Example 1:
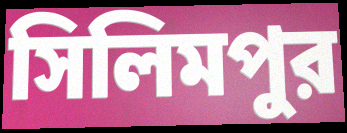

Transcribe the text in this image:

সিলিমপুর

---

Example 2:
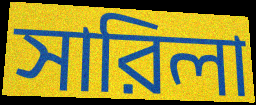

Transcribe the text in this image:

সারিলা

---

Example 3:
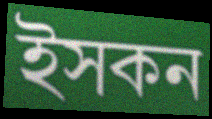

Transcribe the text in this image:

ইসকন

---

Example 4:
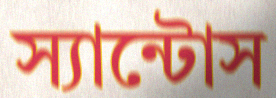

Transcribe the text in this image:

স্যান্টোস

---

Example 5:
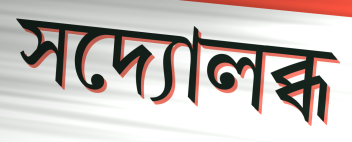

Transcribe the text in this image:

সদ্যোলব্ধ